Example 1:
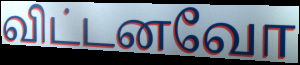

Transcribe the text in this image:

விட்டனவோ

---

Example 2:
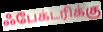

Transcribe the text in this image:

ஃபேக்டரிக்கு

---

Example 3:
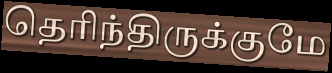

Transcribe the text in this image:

தெரிந்திருக்குமே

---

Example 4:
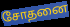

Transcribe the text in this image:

சோதனை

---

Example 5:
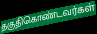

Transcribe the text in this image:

தகுதிகொண்டவர்கள்